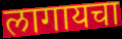
लागायचा